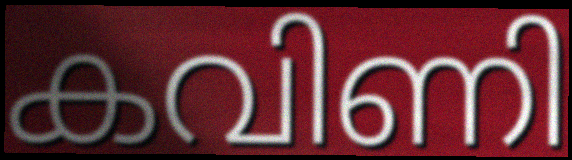
കവിണി